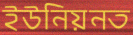
ইউনিয়নত